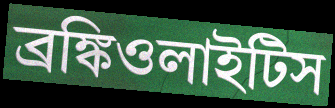
ব্রঙ্কিওলাইটিস